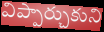
విప్పార్చుకుని